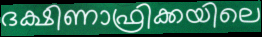
ദക്ഷിണാഫ്രിക്കയിലെ